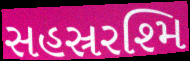
સહસ્રરશ્મિ